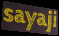
sayaji